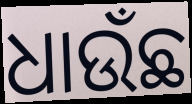
ଧାଉଁଛ